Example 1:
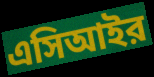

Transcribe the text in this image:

এসিআইর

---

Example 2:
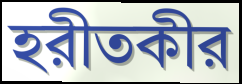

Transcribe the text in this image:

হরীতকীর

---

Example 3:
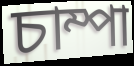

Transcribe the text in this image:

চাম্পা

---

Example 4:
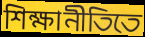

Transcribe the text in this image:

শিক্ষানীতিতে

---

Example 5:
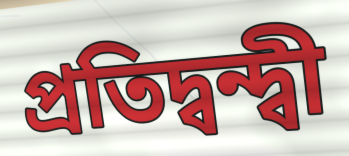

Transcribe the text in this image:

প্রতিদ্বন্দ্বী